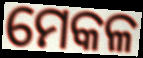
ମେକଳ